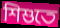
শিশুতে